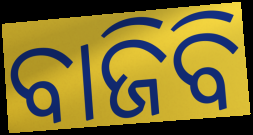
ବାଜିବି